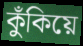
কুঁকিয়ে